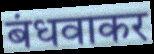
बंधवाकर